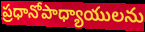
ప్రధానోపాధ్యాయులను